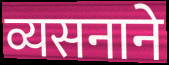
व्यसनाने